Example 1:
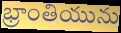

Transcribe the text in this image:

భ్రాంతియును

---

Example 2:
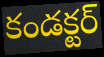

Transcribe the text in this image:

కండక్టర్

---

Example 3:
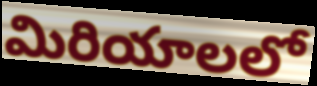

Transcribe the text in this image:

మిరియాలలో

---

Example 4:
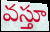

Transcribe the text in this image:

వస్తూ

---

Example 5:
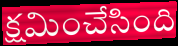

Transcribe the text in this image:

క్షమించేసింది